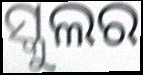
ସ୍କୁଲର